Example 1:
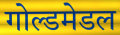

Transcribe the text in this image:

गोल्डमेडल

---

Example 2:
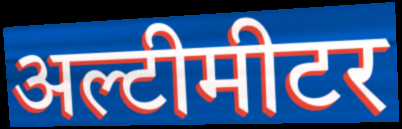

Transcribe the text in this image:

अल्टीमीटर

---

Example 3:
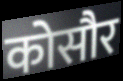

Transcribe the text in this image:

कोसौर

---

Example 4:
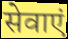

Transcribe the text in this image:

सेवाएं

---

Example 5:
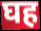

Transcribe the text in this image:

घह